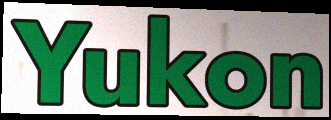
Yukon